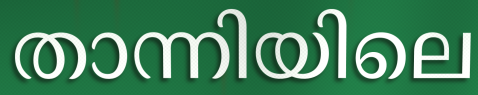
താന്നിയിലെ